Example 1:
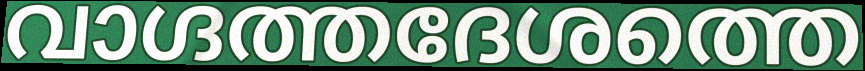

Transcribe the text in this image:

വാഗ്ദത്തദേശത്തെ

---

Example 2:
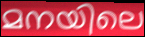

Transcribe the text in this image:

മനയിലെ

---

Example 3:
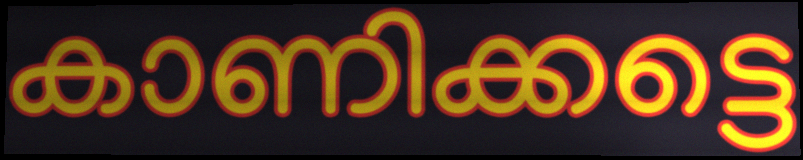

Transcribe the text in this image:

കാണിക്കട്ടെ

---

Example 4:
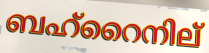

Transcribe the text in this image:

ബഹ്റൈനില്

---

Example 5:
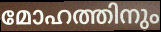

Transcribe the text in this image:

മോഹത്തിനും